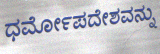
ಧರ್ಮೋಪದೇಶವನ್ನು